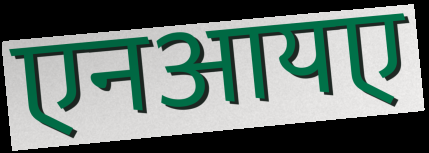
एनआयए